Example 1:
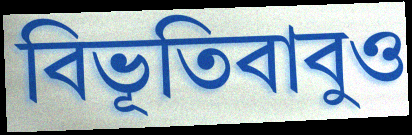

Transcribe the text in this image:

বিভূতিবাবুও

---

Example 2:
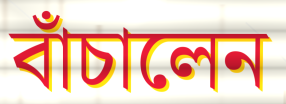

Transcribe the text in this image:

বাঁচালেন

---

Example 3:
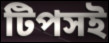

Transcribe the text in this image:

টিপসই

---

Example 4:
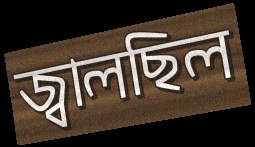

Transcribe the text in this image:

জ্বালছিল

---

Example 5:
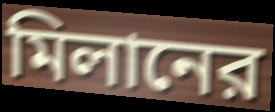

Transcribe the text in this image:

মিলানের